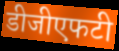
डीजीएफटी